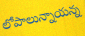
లోపాలున్నాయన్న